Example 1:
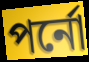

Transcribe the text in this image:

পর্নো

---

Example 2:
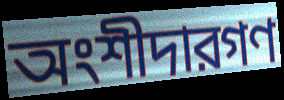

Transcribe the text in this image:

অংশীদারগণ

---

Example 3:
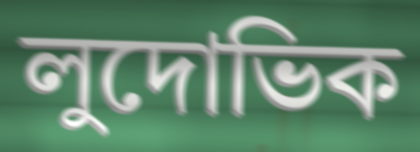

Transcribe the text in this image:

লুদোভিক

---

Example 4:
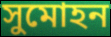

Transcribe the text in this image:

সুমোহন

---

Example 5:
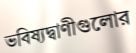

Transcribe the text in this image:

ভবিষ্যদ্বাণীগুলোর